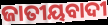
ଜାତୀୟବାଦୀ